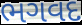
ભગવદ